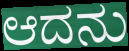
ಆದನು